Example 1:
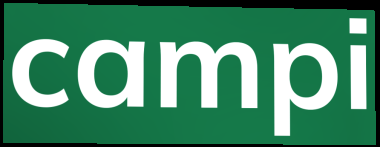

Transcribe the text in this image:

campi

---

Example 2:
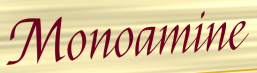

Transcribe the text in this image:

Monoamine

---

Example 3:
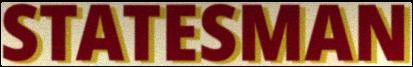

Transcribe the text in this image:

STATESMAN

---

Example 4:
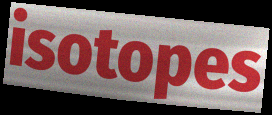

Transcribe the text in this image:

isotopes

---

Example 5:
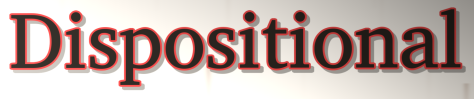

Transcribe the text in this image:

Dispositional